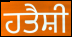
ਹਤੈਸ਼ੀ